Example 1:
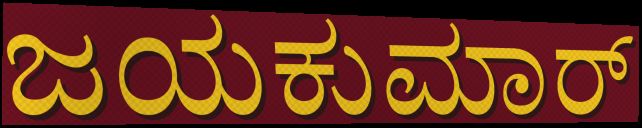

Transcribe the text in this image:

ಜಯಕುಮಾರ್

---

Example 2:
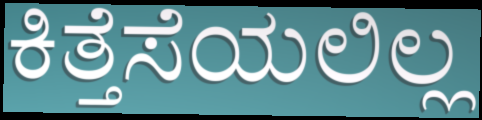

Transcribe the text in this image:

ಕಿತ್ತೆಸೆಯಲಿಲ್ಲ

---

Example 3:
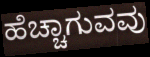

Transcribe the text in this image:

ಹೆಚ್ಚಾಗುವವು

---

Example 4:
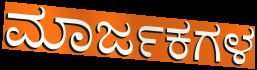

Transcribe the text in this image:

ಮಾರ್ಜಕಗಳ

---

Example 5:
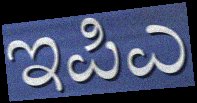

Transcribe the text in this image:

ಇಪಿಎ